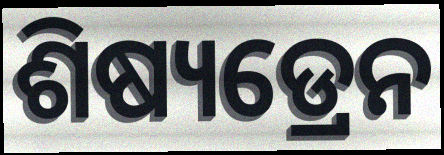
ଶିଷ୍ୟଡ୍ରେନ